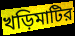
খড়িমাটির